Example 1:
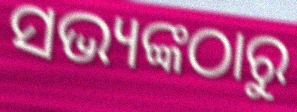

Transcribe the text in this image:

ସଭ୍ୟଙ୍କଠାରୁ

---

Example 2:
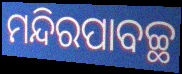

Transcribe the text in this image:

ମନ୍ଦିରପାବଚ୍ଛ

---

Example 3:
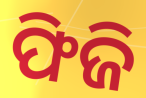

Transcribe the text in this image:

ଫିଜି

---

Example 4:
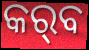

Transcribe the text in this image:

କର୍‌ବ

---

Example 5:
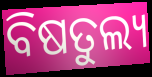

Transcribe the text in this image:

ବିଷତୁଲ୍ୟ